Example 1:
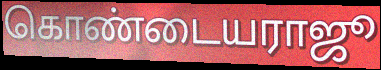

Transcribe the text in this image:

கொண்டையராஜூ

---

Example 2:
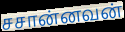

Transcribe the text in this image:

சசான்னவன்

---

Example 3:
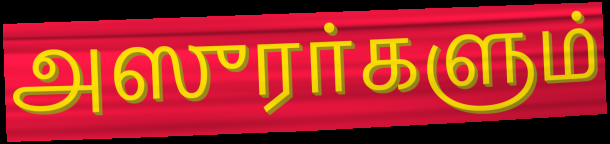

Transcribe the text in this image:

அஸுரர்களும்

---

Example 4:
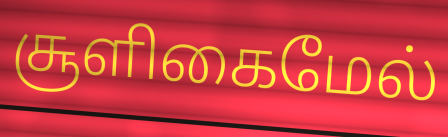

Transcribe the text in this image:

சூளிகைமேல்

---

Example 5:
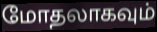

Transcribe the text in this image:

மோதலாகவும்